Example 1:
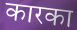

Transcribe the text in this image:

कारका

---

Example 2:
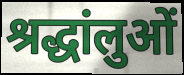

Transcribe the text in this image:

श्रद्धांलुओं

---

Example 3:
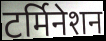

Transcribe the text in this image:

टर्मिनेशन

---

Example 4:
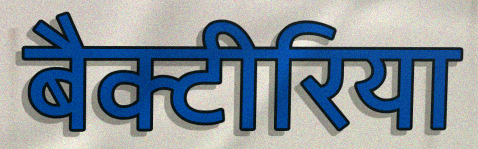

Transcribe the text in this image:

बैक्टीरिया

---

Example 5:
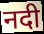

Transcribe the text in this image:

नदी